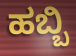
ಹಬ್ಬಿ